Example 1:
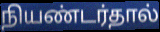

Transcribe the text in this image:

நியண்டர்தால்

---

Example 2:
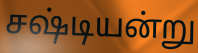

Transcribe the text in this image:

சஷ்டியன்று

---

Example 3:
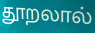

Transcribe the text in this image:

தூறலால்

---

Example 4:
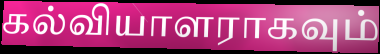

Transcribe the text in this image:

கல்வியாளராகவும்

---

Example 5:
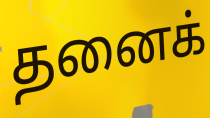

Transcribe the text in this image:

தனைக்